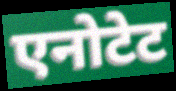
एनोटेट